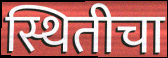
स्थितीचा